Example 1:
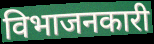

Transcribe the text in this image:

विभाजनकारी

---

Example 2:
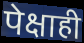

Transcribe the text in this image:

पेक्षाही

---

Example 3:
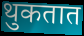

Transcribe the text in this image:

थुकतात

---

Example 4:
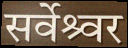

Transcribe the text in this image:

सर्वेश्र्वर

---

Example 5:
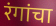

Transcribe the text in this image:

रंगांचा